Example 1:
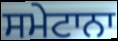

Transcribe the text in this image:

ਸਮੇਟਾਨਾ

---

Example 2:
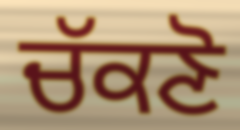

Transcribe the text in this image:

ਚੱਕਣੋ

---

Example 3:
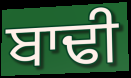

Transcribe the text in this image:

ਬਾਢੀ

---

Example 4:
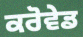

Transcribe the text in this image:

ਕਰੋਵੇਡ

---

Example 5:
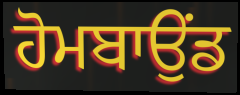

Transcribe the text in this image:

ਹੋਮਬਾਉਂਡ